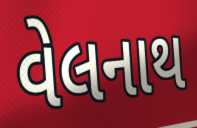
વેલનાથ